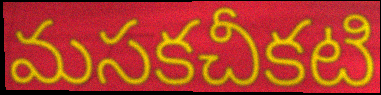
మసకచీకటి